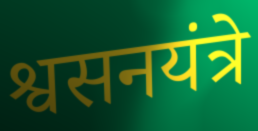
श्वसनयंत्रे